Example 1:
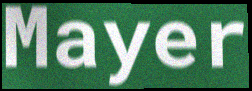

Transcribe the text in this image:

Mayer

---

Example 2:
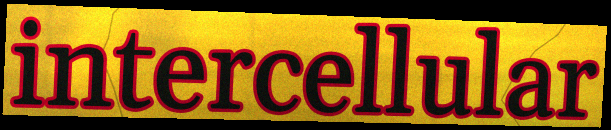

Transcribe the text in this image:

intercellular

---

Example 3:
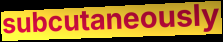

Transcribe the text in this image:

subcutaneously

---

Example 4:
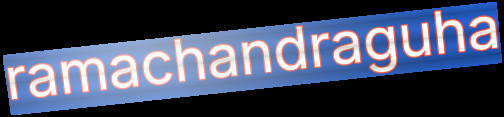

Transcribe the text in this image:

ramachandraguha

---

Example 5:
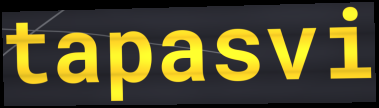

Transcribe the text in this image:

tapasvi